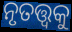
ନୃତତ୍ତ୍ଵକୁ